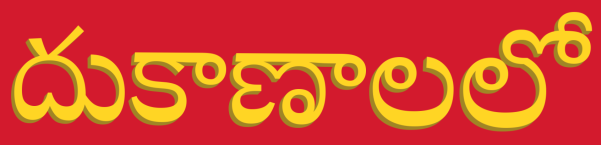
దుకాణాలలో